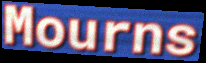
Mourns